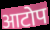
आटोप